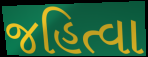
જહિત્વા